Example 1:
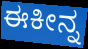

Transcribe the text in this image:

ಈಕೀನ್ನ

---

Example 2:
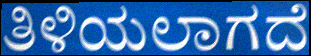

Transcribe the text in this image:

ತಿಳಿಯಲಾಗದೆ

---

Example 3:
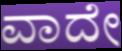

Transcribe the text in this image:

ವಾದೇ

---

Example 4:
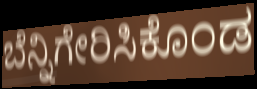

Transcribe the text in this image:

ಬೆನ್ನಿಗೇರಿಸಿಕೊಂಡ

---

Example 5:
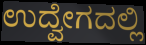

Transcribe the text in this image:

ಉದ್ವೇಗದಲ್ಲಿ